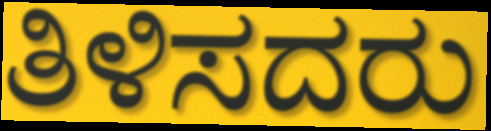
ತಿಳಿಸದರು